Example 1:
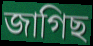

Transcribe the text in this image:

জাগিছ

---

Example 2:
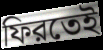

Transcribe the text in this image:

ফিরতেই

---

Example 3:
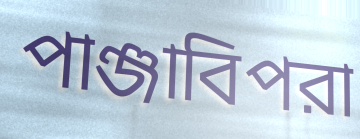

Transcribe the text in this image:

পাঞ্জাবিপরা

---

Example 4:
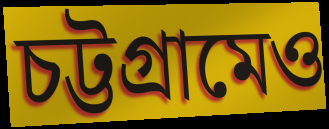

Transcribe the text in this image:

চট্টগ্রামেও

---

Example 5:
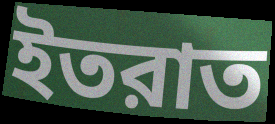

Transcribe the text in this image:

ইতরাত